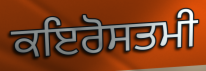
ਕਇਰੋਸਤਮੀ